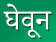
घेवून